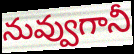
నువ్వుగానీ